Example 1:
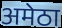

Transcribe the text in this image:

अमेठा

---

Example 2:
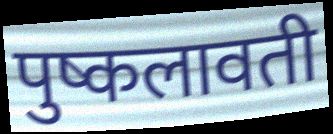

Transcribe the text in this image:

पुष्कलावती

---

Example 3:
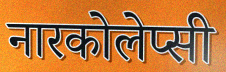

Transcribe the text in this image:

नारकोलेप्सी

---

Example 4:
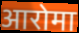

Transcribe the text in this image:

आरोमा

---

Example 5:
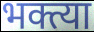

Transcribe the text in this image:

भक्त्या